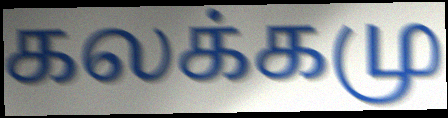
கலக்கமு